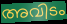
അവിടം